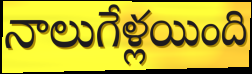
నాలుగేళ్లయింది